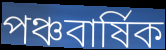
পঞ্চবার্ষিক